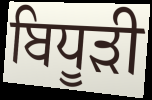
ਬਿਧੂੜੀ